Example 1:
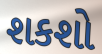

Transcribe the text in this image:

શકશો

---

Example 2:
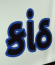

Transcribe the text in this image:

કાંઠ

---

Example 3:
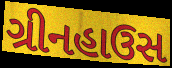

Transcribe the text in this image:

ગ્રીનહાઉસ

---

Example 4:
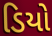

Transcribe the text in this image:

ડિયો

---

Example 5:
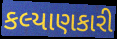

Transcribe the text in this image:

કલ્યાણકારી